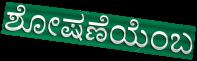
ಶೋಷಣೆಯೆಂಬ